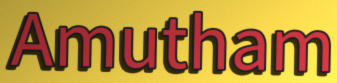
Amutham